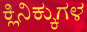
ಕ್ಲಿನಿಕ್ಕುಗಳ